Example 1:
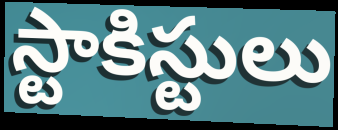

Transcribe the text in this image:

స్టాకిస్టులు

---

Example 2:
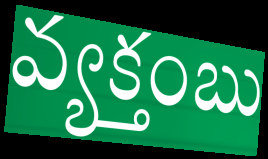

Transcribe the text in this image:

వ్యక్తంబు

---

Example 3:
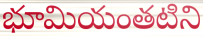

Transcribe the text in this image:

భూమియంతటిని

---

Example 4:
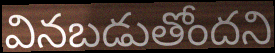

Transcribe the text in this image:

వినబడుతోందని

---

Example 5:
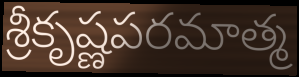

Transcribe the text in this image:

శ్రీకృష్ణపరమాత్మ